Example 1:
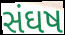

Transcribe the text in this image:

સંઘષ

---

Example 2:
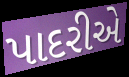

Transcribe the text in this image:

પાદરીએ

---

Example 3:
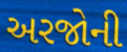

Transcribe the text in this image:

અરજોની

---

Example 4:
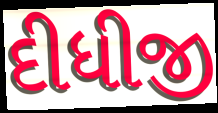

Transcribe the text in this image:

દીધીજી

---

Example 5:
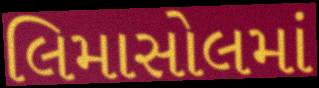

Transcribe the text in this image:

લિમાસોલમાં